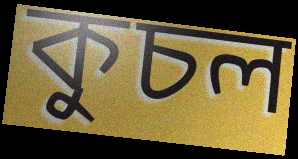
কুচল